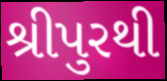
શ્રીપુરથી